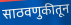
साठवणुकीतून